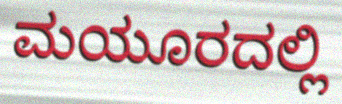
ಮಯೂರದಲ್ಲಿ